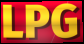
LPG